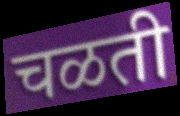
चळती